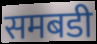
समबडी